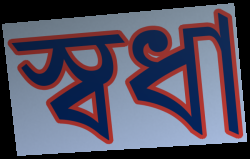
স্বধা